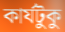
কার্যটুকু